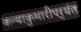
कन्याकुमारीपर्यंत